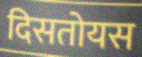
दिसतोयस